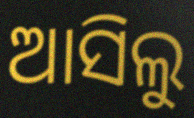
ଆସିଲୁ